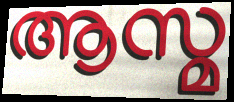
ആസ്മ